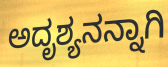
ಅದೃಶ್ಯನನ್ನಾಗಿ